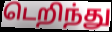
டெறிந்து